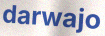
darwajo